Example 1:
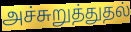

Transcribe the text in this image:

அச்சுறுத்துதல்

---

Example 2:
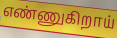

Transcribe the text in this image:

எண்ணுகிறாய்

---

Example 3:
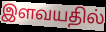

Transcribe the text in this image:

இளவயதில்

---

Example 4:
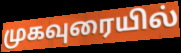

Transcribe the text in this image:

முகவுரையில்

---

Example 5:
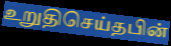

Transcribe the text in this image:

உறுதிசெய்தபின்